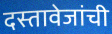
दस्तावेजांची